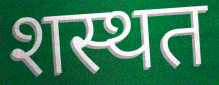
शस्थत